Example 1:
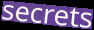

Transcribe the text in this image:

secrets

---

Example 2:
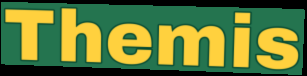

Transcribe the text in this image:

Themis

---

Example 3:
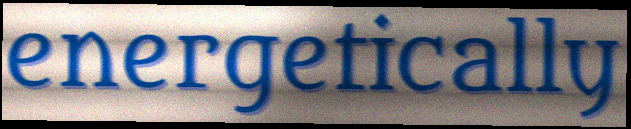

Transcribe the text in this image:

energetically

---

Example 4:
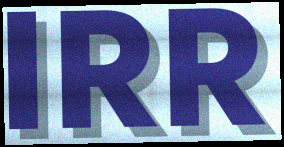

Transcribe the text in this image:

IRR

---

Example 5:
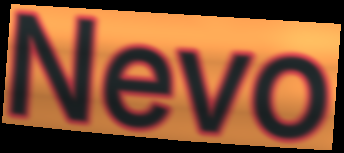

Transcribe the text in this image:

Nevo